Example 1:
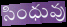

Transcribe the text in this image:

సింధువు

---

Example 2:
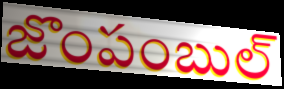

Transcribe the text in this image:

జొంపంబుల్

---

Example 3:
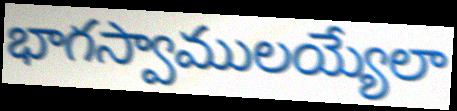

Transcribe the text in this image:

భాగస్వాములయ్యేలా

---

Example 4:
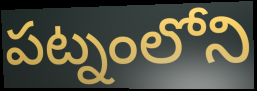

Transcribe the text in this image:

పట్నంలోని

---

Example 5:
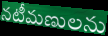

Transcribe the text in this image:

నటీమణులను